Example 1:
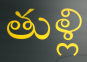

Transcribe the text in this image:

తుళ్లి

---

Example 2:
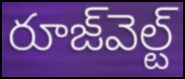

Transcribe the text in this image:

రూజ్‌వెల్ట్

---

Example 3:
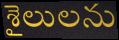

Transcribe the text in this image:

శైలులను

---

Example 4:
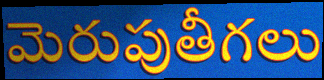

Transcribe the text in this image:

మెరుపుతీగలు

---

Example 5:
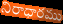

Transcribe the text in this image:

నిరాధారము